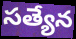
సత్యేన